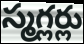
స్మగ్లర్లు